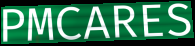
PMCARES